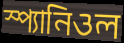
স্প্যানিওল